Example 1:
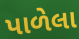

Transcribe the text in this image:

પાળેલા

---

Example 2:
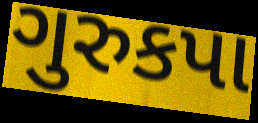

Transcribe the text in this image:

ગુરુકપા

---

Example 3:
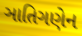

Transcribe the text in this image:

ઞાતિગણેન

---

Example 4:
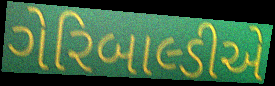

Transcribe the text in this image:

ગેરિબાલ્ડીએ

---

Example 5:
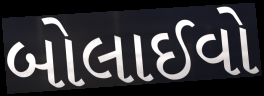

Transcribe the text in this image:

બોલાઈવો